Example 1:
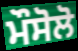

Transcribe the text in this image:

ਮੌਸੋਲੋ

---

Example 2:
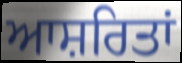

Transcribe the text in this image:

ਆਸ਼ਰਿਤਾਂ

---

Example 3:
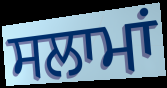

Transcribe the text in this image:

ਸਲਾਮਾਂ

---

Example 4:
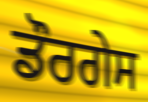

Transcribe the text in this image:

ਡੌਰਗੇਸ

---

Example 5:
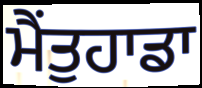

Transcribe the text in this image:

ਮੈਂਤੁਹਾਡਾ